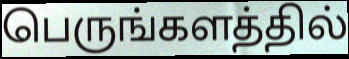
பெருங்களத்தில்